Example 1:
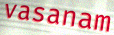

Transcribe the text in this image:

vasanam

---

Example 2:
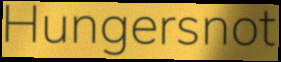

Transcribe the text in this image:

Hungersnot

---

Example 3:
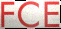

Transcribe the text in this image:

FCE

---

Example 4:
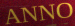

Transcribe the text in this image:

ANNO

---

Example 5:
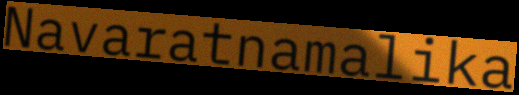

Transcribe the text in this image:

Navaratnamalika